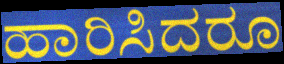
ಹಾರಿಸಿದರೂ